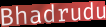
Bhadrudu